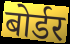
बोर्डर